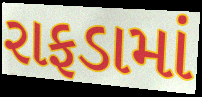
રાફડામાં